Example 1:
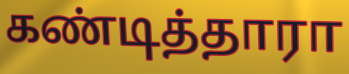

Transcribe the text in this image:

கண்டித்தாரா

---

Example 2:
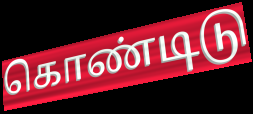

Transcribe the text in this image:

கொண்டிடு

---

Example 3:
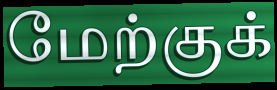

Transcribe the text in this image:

மேற்குக்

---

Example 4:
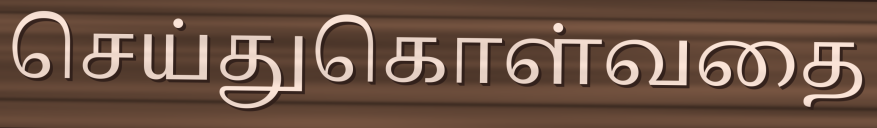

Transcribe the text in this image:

செய்துகொள்வதை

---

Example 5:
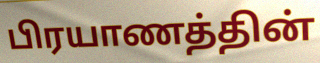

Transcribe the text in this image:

பிரயாணத்தின்